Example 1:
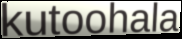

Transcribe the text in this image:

kutoohala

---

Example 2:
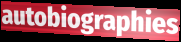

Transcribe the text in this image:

autobiographies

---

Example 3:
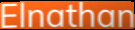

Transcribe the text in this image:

Elnathan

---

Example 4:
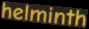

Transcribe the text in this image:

helminth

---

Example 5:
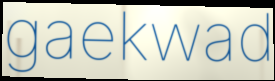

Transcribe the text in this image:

gaekwad